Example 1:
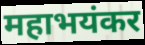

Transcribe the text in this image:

महाभयंकर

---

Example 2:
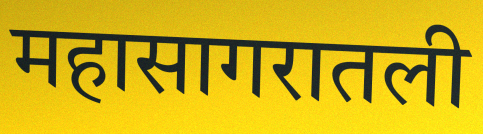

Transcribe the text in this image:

महासागरातली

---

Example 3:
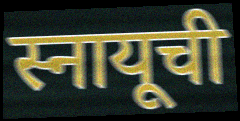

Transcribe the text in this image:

स्नायूची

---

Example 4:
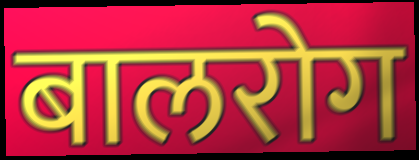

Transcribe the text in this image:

बालरोग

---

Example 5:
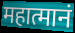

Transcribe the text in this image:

महात्मानं